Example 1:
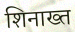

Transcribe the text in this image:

शिनाख्त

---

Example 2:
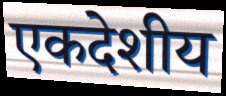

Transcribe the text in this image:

एकदेशीय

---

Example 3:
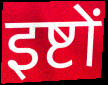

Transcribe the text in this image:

इष्टों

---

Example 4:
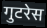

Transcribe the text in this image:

गुटरेस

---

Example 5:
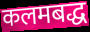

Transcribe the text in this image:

कलमबद्ध